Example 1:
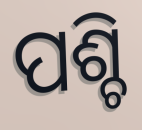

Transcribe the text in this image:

ପଶ୍ଚି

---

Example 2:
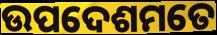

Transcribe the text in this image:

ଉପଦେଶମତେ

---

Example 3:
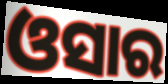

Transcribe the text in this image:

ଓସାର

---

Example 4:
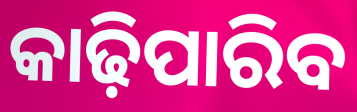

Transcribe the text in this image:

କାଢ଼ିପାରିବ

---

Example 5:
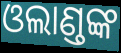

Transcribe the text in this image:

ଓଲାଣ୍ଡଙ୍କ